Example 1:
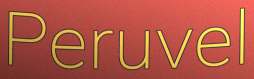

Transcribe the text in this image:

Peruvel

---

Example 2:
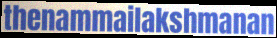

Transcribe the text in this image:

thenammailakshmanan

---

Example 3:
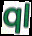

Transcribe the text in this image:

ql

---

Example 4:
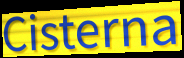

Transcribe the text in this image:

Cisterna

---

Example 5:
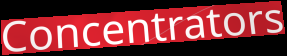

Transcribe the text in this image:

Concentrators